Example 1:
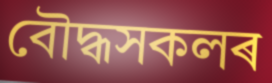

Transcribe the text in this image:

বৌদ্ধসকলৰ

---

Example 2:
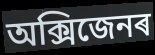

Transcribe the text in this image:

অক্সিজেনৰ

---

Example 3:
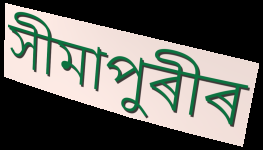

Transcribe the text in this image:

সীমাপুৰীৰ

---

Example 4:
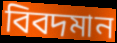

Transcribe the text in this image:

বিবদমান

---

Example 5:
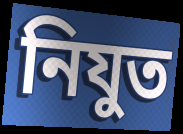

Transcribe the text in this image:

নিযুত